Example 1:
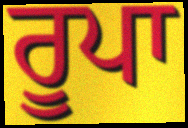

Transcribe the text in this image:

ਰੂਪਾ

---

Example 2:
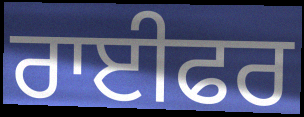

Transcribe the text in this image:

ਰਾਈਫਰ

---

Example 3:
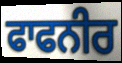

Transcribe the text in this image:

ਫਾਫਨੀਰ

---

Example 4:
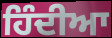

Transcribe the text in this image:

ਹਿੰਦੀਆ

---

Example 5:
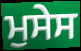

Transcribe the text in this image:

ਮੁਸੇਸ